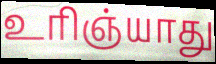
உரிஞ்யாது